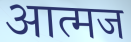
आत्मज